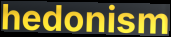
hedonism